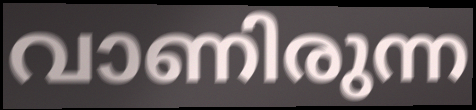
വാണിരുന്ന